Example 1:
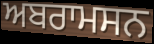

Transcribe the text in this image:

ਅਬਰਾਮਸਨ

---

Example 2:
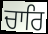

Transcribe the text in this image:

ਚਾਰਿ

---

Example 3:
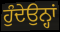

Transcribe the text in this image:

ਹੁੰਦੇਉਨ੍ਹਾਂ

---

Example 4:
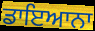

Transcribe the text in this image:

ਡਾਇਆਨਾ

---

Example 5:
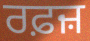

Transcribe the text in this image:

ਰਫ਼ਜ਼